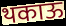
थकाऊ